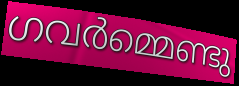
ഗവർമ്മെണ്ടു